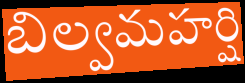
బిల్వమహర్షి